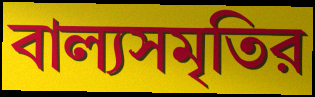
বাল্যসমৃতির